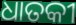
ଧାତକୀ